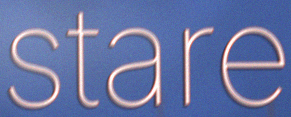
stare